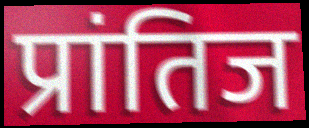
प्रांतिज